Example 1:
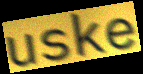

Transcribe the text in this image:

uske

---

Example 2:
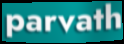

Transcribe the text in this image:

parvath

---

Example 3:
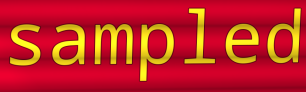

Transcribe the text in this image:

sampled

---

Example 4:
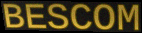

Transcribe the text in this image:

BESCOM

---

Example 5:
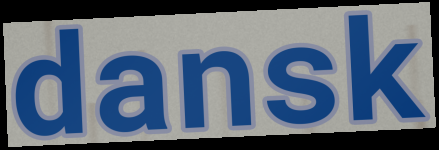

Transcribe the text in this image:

dansk